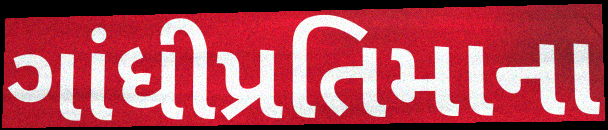
ગાંધીપ્રતિમાના